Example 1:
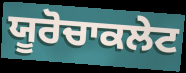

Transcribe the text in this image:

ਯੂਰੋਚਾਕਲੇਟ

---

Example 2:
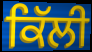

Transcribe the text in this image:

ਕਿੱਲੀ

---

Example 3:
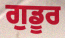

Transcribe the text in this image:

ਗੁਡੂਰ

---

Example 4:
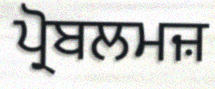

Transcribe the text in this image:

ਪ੍ਰੋਬਲਮਜ਼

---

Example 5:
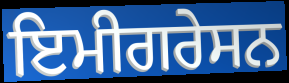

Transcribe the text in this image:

ਇਮੀਗਰੇਸਨ